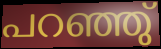
പറഞ്ഞു്